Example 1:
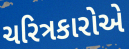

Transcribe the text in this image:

ચરિત્રકારોએ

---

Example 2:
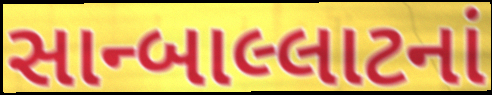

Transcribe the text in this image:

સાન્બાલ્લાટનાં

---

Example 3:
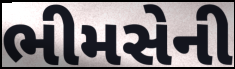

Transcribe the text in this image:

ભીમસેની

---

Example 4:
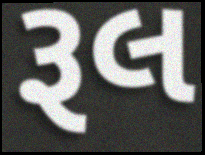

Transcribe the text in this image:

રૂલ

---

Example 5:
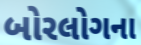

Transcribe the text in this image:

બોરલોગના